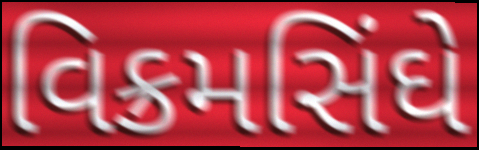
વિક્રમસિંઘે